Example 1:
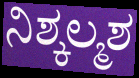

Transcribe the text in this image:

ನಿಶ್ಕಲ್ಮಶ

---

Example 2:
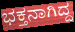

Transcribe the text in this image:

ಭಕ್ತನಾಗಿದ್ದ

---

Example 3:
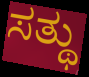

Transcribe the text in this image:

ಸತ್ಥು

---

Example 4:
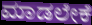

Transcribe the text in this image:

ಮಾಡಲೇಕೆ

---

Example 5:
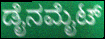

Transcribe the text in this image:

ಡೈನಮೈಟ್